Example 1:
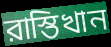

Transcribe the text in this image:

রাস্তিখান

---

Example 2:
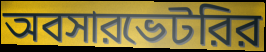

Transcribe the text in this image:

অবসারভেটরির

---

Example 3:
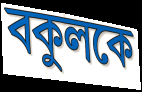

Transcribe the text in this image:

বকুলকে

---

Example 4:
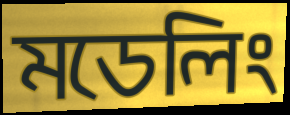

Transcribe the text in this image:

মডেলিং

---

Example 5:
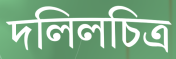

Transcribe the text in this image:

দলিলচিত্র